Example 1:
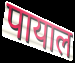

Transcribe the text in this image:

पायाल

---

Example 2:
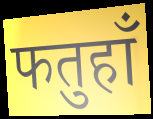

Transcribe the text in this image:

फतुहाँ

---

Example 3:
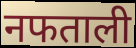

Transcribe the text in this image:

नफताली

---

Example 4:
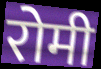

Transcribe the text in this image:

रोमी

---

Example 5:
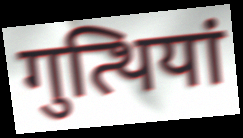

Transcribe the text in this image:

गुत्थियां